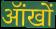
ऑंखों